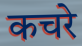
कचरे